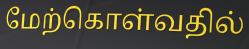
மேற்கொள்வதில்